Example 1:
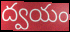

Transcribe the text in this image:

ద్వయం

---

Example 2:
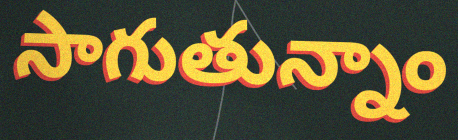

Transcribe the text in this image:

సాగుతున్నాం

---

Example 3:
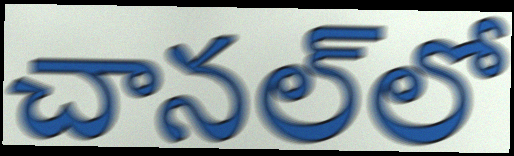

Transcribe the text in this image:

చానల్‌లో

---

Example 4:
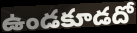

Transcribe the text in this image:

ఉండకూడదో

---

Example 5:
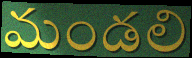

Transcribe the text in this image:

మండలి